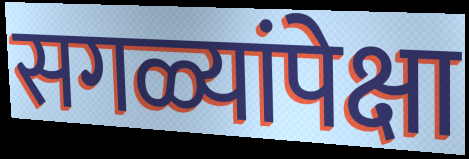
सगळ्यांपेक्षा